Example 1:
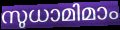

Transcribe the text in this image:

സുധാമിമാം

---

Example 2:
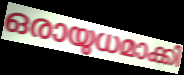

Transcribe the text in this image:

ഒരായുധമാക്കി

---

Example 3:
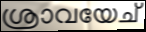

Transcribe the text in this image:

ശ്രാവയേച്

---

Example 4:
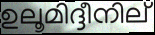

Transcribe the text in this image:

ഉലൂമിദ്ദീനില്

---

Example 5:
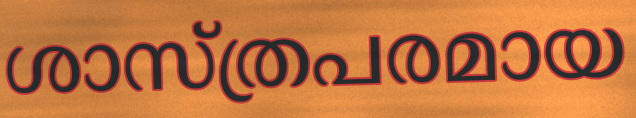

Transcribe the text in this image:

ശാസ്ത്രപരമായ